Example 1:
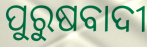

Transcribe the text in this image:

ପୁରୁଷବାଦୀ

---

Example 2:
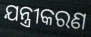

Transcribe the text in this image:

ଯନ୍ତ୍ରୀକରଣ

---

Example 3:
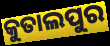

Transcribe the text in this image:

କୁତାଲପୁର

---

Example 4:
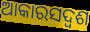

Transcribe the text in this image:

ଆକାରସଦ୍ୱଶ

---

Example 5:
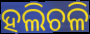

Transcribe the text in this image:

ହଲିଚଳି